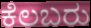
ಕೆಲಬರು